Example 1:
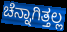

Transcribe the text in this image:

ಚೆನ್ನಾಗಿತ್ತಲ್ಲ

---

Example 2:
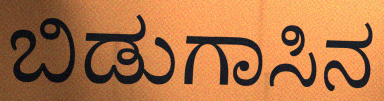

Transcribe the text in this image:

ಬಿಡುಗಾಸಿನ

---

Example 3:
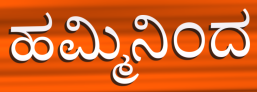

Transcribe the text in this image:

ಹಮ್ಮಿನಿಂದ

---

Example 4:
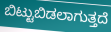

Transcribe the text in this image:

ಬಿಟ್ಟುಬಿಡಲಾಗುತ್ತದೆ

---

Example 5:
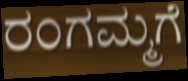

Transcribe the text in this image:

ರಂಗಮ್ಮಗೆ